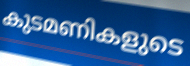
കുടമണികളുടെ